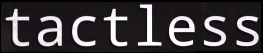
tactless